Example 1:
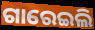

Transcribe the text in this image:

ଗାରେଇଲି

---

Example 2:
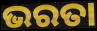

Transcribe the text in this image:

ଭରତା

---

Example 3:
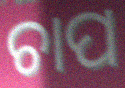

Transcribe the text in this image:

ଚାପ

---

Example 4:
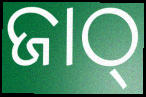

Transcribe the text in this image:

ଜାଠ୍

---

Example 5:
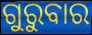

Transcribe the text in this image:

ଗୁରୁବାର